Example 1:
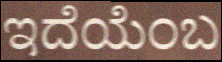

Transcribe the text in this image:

ಇದೆಯೆಂಬ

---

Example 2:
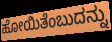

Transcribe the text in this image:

ಹೋಯಿತೆಂಬುದನ್ನು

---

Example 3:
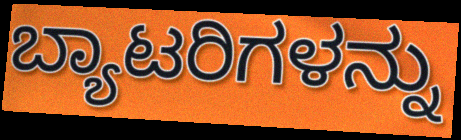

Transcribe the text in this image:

ಬ್ಯಾಟರಿಗಳನ್ನು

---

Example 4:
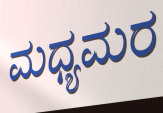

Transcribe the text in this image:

ಮಧ್ಯಮರ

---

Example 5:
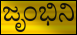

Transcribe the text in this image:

ಜೃಂಭಿನಿ